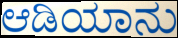
ಆಡಿಯಾನು